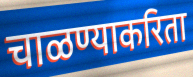
चाळण्याकरिता